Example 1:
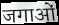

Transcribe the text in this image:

जगाओं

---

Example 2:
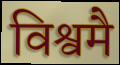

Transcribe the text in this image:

विश्वमै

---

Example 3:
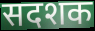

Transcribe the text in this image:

सदशक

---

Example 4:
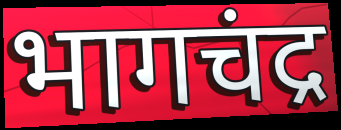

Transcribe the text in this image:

भागचंद्र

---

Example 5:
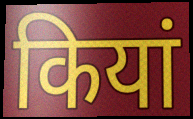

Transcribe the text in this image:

कियां